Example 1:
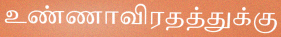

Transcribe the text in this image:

உண்ணாவிரதத்துக்கு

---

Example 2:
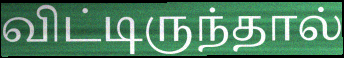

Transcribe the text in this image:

விட்டிருந்தால்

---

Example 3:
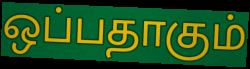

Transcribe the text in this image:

ஒப்பதாகும்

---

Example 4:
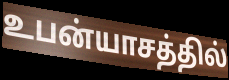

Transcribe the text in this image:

உபன்யாசத்தில்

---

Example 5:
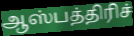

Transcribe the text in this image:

ஆஸ்பத்திரிச்